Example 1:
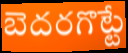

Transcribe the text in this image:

బెదరగొట్టే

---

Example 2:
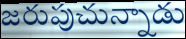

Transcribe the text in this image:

జరుపుచున్నాడు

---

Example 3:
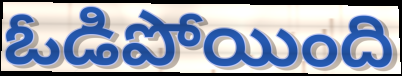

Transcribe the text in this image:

ఓడిపోయింది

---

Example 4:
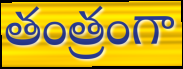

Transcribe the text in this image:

తంత్రంగా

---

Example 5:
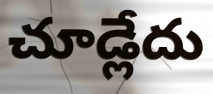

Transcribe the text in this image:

చూడ్లేదు